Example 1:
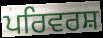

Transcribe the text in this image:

ਪਰਿਵਰਸ਼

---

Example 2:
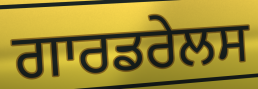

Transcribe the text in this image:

ਗਾਰਡਰੇਲਸ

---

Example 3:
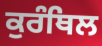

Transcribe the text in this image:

ਕੁਰੰਥਿਲ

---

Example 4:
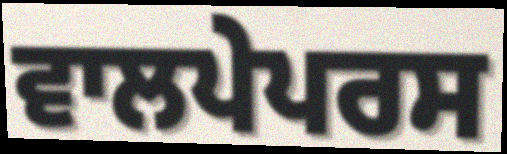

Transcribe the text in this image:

ਵਾਲਪੇਪਰਸ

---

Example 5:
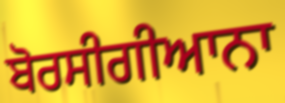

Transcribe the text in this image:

ਬੋਰਸੀਗੀਆਨਾ